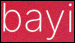
bayi